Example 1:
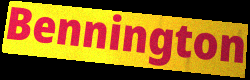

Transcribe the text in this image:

Bennington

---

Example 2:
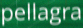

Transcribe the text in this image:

pellagra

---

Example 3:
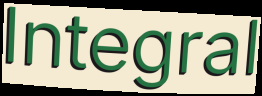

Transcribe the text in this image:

Integral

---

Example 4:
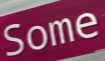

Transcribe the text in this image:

Some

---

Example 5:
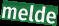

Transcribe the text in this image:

melde